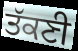
ਤੱਕਣੀ